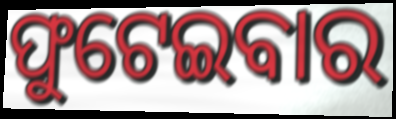
ଫୁଟେଇବାର